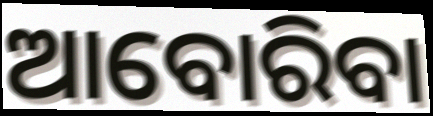
ଆବୋରିବା